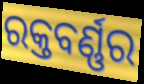
ରକ୍ତବର୍ଣ୍ଣର